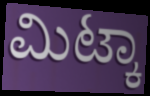
ಮಿಟ್ಕಾ